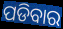
ପଡିବାର